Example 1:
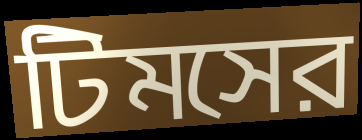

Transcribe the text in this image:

টিমসের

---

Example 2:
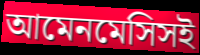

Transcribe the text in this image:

আমেনমেসিসই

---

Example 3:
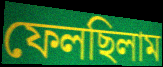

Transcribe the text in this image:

ফেলছিলাম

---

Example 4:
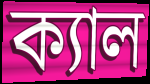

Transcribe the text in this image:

ক্যাল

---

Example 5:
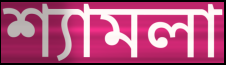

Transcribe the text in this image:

শ্যামলা